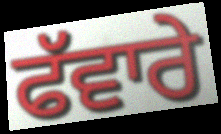
ਫੱਵਾਰੇ